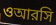
ওআরসি